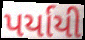
પર્યાયી